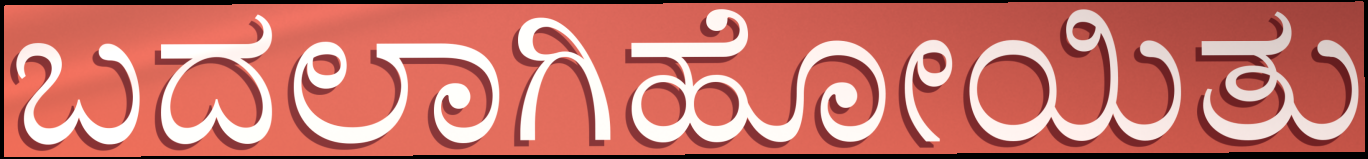
ಬದಲಾಗಿಹೋಯಿತು